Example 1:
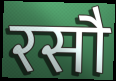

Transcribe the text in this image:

रसौ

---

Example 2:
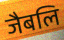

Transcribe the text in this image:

जैबलि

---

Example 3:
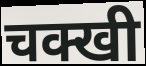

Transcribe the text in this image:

चक्खी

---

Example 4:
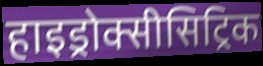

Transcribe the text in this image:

हाइड्रोक्सीसिट्रिक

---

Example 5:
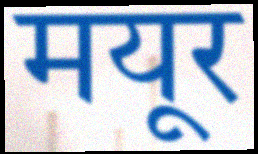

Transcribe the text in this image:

मयूर